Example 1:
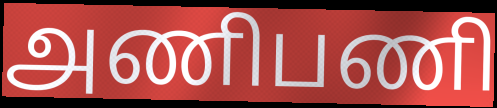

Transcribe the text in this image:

அணிபணி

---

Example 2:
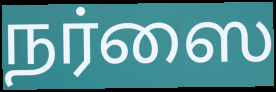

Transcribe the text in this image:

நர்ஸை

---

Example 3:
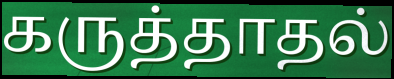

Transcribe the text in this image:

கருத்தாதல்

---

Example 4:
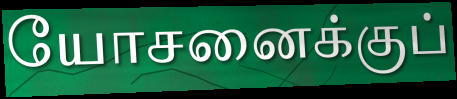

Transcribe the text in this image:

யோசனைக்குப்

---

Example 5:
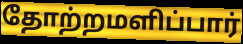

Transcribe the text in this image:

தோற்றமளிப்பார்